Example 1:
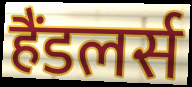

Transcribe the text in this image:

हैंडलर्स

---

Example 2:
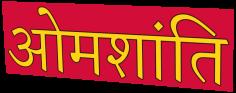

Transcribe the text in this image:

ओमशांति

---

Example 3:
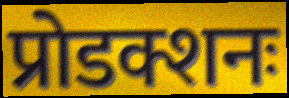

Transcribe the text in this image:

प्रोडक्शनः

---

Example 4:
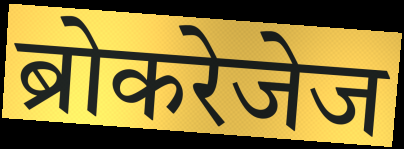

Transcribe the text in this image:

ब्रोकरेजेज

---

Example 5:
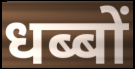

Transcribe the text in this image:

धब्बों